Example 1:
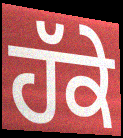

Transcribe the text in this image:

ਹੱਕੇ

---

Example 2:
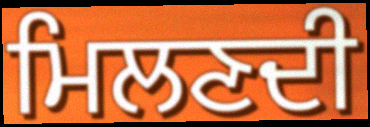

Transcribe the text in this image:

ਮਿਲਣਦੀ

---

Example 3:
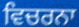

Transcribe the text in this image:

ਵਿਚਰਨਾ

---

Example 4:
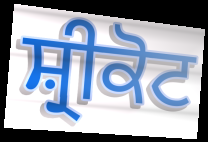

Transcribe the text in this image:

ਸ਼੍ਰੀਕੋਟ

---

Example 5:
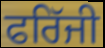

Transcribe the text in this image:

ਫਰਿੱਜੀ